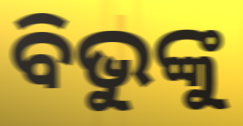
ବିଭୁଙ୍କୁ